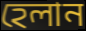
হেলান